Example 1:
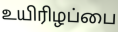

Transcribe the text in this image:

உயிரிழப்பை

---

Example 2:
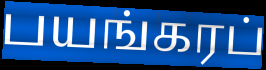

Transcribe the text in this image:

பயங்கரப்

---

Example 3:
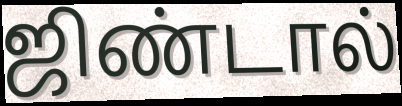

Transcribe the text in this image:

ஜிண்டால்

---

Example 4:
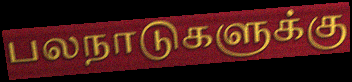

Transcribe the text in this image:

பலநாடுகளுக்கு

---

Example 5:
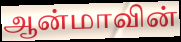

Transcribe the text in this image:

ஆன்மாவின்